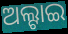
ଅଲ୍ଟାଇ